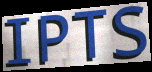
IPTS